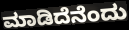
ಮಾಡಿದೆನೆಂದು